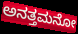
ಅನತ್ತಮನೋ